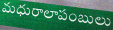
మధురాలాపంబులు